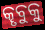
କୄବୁକୁ